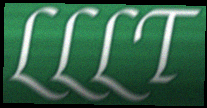
LLLT